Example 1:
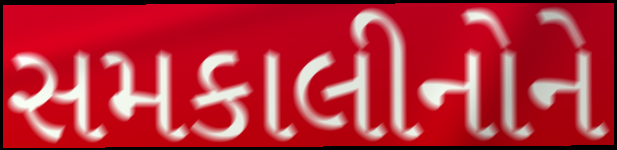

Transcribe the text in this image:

સમકાલીનોને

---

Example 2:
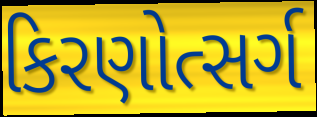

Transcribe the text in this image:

કિરણોત્સર્ગ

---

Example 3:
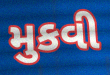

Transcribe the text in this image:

મુકવી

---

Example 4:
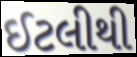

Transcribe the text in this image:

ઈટલીથી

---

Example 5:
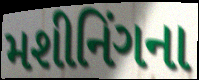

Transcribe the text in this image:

મશીનિંગના